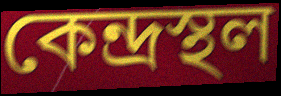
কেন্দ্ৰস্থল